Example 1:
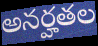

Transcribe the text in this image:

అనర్హతల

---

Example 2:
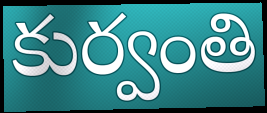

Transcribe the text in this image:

కుర్వంతి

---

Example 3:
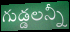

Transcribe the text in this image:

గుడ్డలన్నీ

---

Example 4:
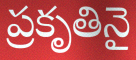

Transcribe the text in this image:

ప్రకృతినై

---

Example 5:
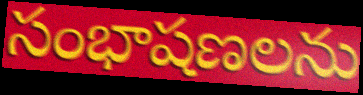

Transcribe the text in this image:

సంభాషణలను